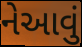
નેઆવું